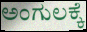
ಅಂಗುಲಕ್ಕೆ